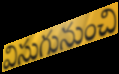
విసుగునుంచి